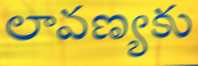
లావణ్యకు